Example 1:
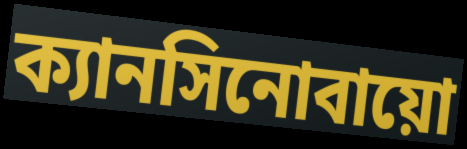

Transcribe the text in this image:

ক্যানসিনোবায়ো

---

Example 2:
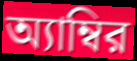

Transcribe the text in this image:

অ্যাম্বির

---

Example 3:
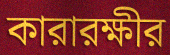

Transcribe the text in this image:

কারারক্ষীর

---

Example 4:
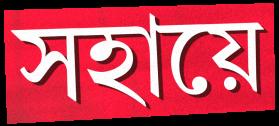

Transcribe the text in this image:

সহায়ে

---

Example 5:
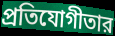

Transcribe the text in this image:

প্রতিযোগীতার